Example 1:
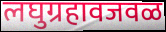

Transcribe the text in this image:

लघुग्रहावजवळ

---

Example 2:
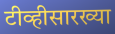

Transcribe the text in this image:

टीव्हीसारख्या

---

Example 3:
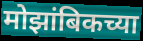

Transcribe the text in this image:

मोझांबिकच्या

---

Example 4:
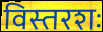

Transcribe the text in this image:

विस्तरशः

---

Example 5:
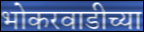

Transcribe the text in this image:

भोकरवाडीच्या